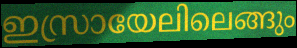
ഇസ്രായേലിലെങ്ങും